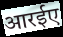
आरईए